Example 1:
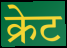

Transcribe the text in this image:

क्रेट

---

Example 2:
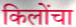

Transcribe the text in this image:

किलोंचा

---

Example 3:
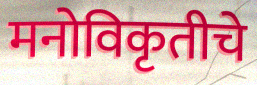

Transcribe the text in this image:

मनोविकृतीचे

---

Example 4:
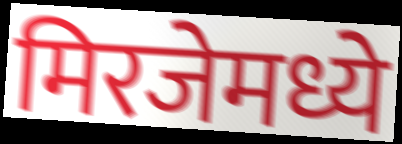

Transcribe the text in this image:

मिरजेमध्ये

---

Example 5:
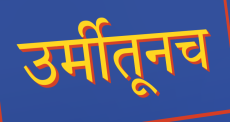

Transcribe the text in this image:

उर्मीतूनच